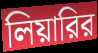
লিয়ারির